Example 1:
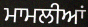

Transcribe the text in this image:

ਮਾਮਲੀਆਂ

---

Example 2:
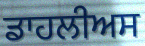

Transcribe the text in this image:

ਡਾਹਲੀਅਸ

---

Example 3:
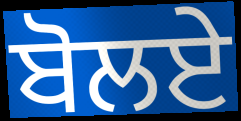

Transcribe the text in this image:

ਬੋਲਏ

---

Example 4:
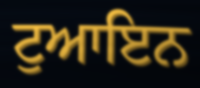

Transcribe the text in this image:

ਟੁਆਇਨ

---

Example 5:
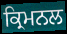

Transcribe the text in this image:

ਕ੍ਰਿਮਨਲ